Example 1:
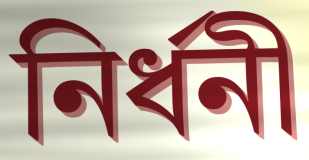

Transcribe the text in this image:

নির্ধনী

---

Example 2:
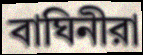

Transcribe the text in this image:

বাঘিনীরা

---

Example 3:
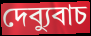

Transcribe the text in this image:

দেব্যুবাচ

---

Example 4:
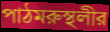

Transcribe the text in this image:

পাঠমরুস্থলীর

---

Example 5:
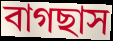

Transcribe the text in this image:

বাগছাস